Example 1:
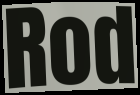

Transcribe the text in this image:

Rod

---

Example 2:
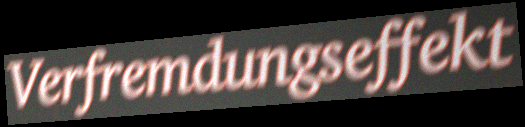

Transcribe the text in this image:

Verfremdungseffekt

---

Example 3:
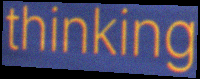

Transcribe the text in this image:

thinking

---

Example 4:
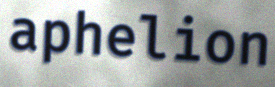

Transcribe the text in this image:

aphelion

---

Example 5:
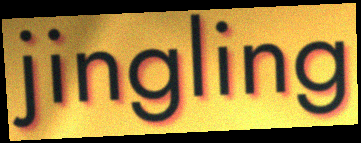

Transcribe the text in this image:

jingling